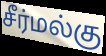
சீர்மல்கு